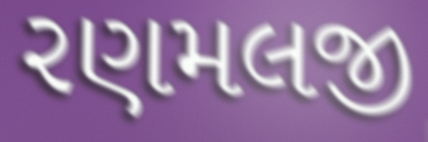
રણમલજી